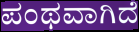
ಪಂಥವಾಗಿದೆ